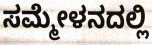
ಸಮ್ಮೇಳನದಲ್ಲಿ